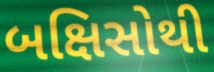
બક્ષિસોથી